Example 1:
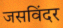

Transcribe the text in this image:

जसविंदर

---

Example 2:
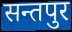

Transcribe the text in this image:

सन्तपुर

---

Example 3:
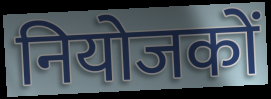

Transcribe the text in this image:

नियोजकों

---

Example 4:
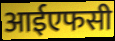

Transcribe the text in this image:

आईएफसी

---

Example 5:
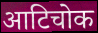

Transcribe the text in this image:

आटिचोक